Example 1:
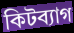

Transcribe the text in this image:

কিটব্যাগ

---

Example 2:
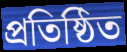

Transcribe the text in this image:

প্রতিষ্ঠিত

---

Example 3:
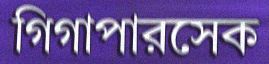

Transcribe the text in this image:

গিগাপারসেক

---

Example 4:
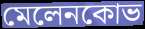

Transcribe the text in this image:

মেলেনকোভ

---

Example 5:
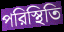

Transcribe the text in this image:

পরিস্থিতি